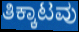
ತಿಕ್ಕಾಟವು